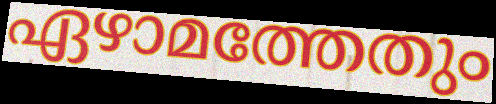
ഏഴാമത്തേതും